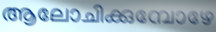
ആലോചിക്കുമ്പോഴേ